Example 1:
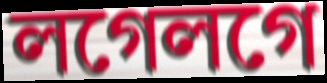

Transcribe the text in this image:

লগেলগে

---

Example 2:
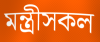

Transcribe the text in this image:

মন্ত্ৰীসকল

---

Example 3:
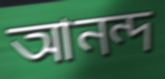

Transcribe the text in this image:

আনন্দ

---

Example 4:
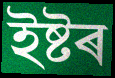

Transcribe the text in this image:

ইষ্টৰ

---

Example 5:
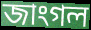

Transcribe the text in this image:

জাংগল